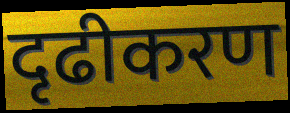
दृढीकरण